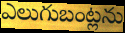
ఎలుగుబంట్లను